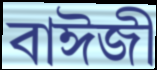
বাঈজী